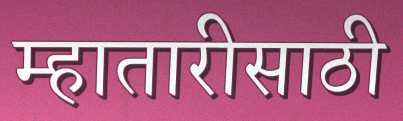
म्हातारीसाठी